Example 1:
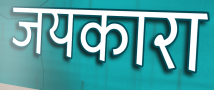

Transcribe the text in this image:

जयकारा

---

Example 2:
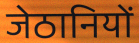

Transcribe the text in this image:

जेठानियों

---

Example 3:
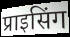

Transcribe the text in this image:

प्राइसिंग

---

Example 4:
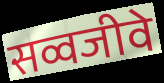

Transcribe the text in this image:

सव्वजीवे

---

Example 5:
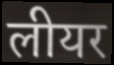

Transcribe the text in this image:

लीयर